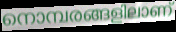
നൊമ്പരങ്ങളിലാണ്